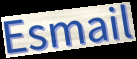
Esmail